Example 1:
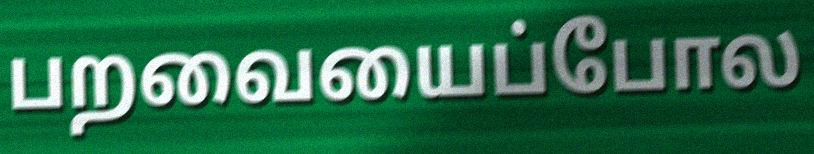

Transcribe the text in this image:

பறவையைப்போல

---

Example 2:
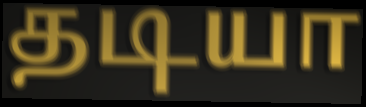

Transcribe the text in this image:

தடியா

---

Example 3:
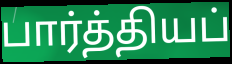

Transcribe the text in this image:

பார்த்தியப்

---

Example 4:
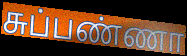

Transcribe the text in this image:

சுப்பண்ணா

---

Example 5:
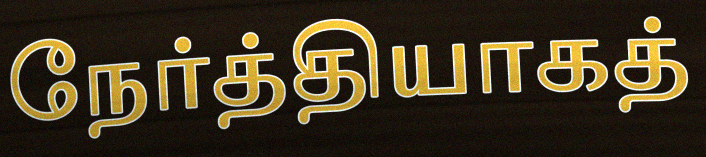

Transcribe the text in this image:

நேர்த்தியாகத்